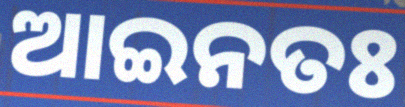
ଆଇନତଃ